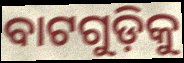
ବାଟଗୁଡ଼ିକୁ